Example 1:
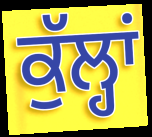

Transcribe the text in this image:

ਕੁੱਲ੍ਹਾਂ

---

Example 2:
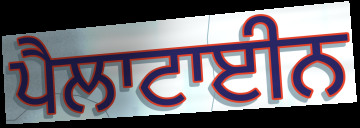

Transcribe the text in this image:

ਪੈਲਾਟਾਈਨ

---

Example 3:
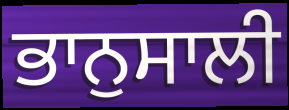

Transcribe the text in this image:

ਭਾਨੁਸਾਲੀ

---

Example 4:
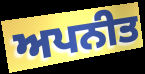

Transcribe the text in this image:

ਅਪਨੀਤ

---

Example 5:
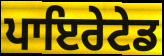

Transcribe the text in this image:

ਪਾਇਰੇਟੇਡ